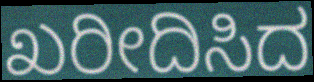
ಖರೀದಿಸಿದ